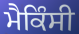
ਮੈਕਿੰਸੀ